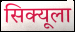
सिक्यूला